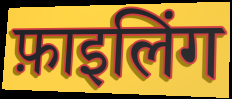
फ़ाइलिंग